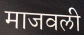
माजवली